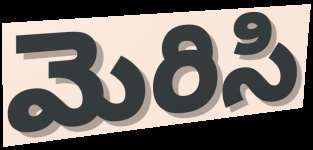
మెరిసి